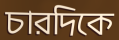
চারদিকে